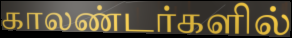
காலண்டர்களில்